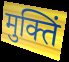
मुक्तिं